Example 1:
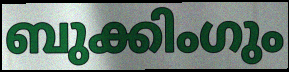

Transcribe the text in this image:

ബുക്കിംഗും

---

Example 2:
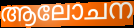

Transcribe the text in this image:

ആലോചന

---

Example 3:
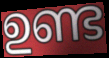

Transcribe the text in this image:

ഉണ്ട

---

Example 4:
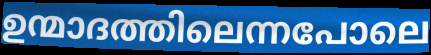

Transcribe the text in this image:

ഉന്മാദത്തിലെന്നപോലെ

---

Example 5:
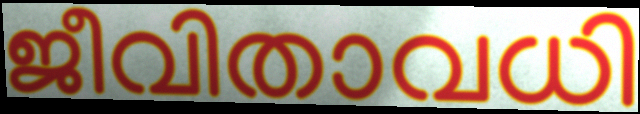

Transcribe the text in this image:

ജീവിതാവധി